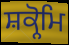
ਸ਼ਕ੍ਨੋਮਿ